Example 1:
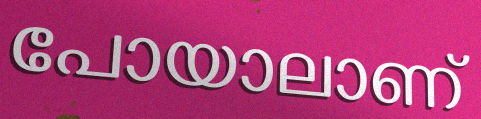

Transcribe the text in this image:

പോയാലാണ്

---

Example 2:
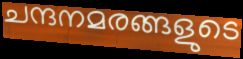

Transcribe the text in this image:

ചന്ദനമരങ്ങളുടെ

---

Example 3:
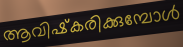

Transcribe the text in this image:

ആവിഷ്‌കരിക്കുമ്പോൾ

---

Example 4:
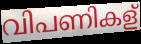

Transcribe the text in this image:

വിപണികള്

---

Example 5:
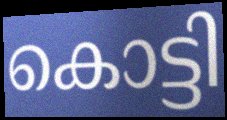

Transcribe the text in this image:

കൊട്ടി